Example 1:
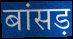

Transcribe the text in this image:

बांसड़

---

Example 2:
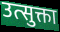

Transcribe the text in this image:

उत्सुक्ता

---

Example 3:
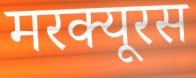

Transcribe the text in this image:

मरक्यूरस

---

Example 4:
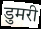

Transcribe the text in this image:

डुमरी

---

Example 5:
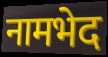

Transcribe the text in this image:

नामभेद